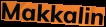
Makkalin